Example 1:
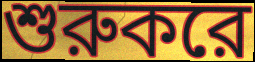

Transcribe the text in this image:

শুরুকরে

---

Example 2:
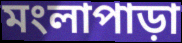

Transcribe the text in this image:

মংলাপাড়া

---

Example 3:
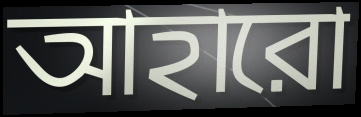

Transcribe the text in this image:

আহারো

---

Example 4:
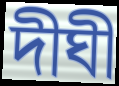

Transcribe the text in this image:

দীঘী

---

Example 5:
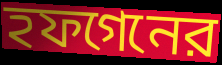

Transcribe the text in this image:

হফগেনের